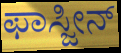
ಫಾಸ್ಜೀನ್